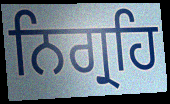
ਨਿਗ੍ਰਹਿ